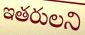
ఇతరులని